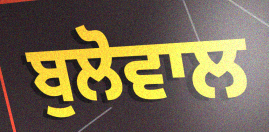
ਬੁਲੋਵਾਲ